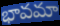
భావమా